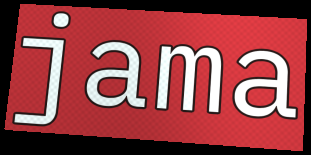
jama